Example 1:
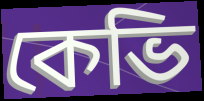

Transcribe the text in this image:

কেভি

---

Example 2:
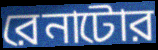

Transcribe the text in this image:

রেনাটোর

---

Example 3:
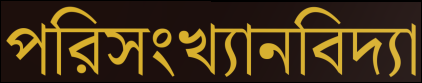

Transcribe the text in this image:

পরিসংখ্যানবিদ্যা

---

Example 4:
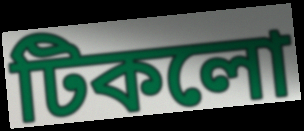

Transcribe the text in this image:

টিকলো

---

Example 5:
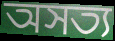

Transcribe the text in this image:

অসত্য